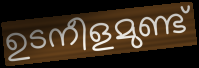
ഉടനീളമുണ്ട്